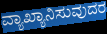
ವ್ಯಾಖ್ಯಾನಿಸುವುದರ